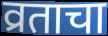
व्रताचा